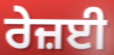
ਰੇਜ਼ਈ